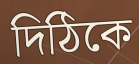
দিঠিকে